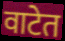
वाटेत